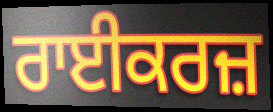
ਰਾਈਕਰਜ਼